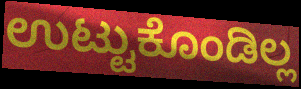
ಉಟ್ಟುಕೊಂಡಿಲ್ಲ